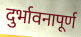
दुर्भावनापूर्ण